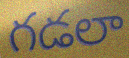
గడలా